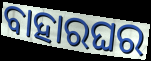
ବାହାରଘର